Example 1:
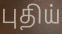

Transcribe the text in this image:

புதிய்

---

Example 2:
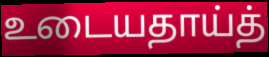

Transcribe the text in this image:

உடையதாய்த்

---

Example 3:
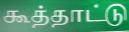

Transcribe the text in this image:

கூத்தாட்டு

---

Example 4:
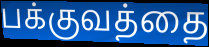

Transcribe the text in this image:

பக்குவத்தை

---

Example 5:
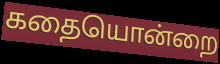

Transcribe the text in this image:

கதையொன்றை